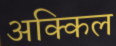
अक्किल